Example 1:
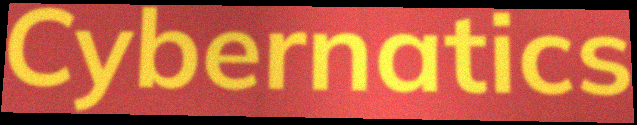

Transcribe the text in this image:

Cybernatics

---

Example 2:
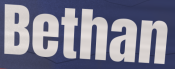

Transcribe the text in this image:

Bethan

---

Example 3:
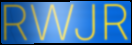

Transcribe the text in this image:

RWJR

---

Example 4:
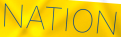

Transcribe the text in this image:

NATION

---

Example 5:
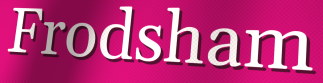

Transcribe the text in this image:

Frodsham